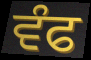
ਵੰਫ